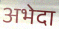
अभेदा